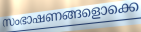
സംഭാഷണങ്ങളൊക്കെ